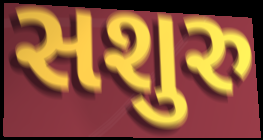
સશુરુ